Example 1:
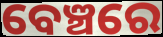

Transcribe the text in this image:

ବେଞ୍ଚରେ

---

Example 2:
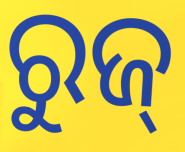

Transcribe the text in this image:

ରୁଜ୍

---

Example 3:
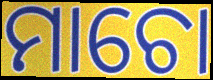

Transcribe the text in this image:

ମାଚୋ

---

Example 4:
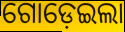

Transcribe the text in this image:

ଗୋଡ଼େଇଲା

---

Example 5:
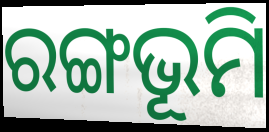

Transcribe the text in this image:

ରଙ୍ଗଭୂମି